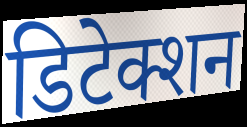
डिटेक्शन